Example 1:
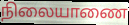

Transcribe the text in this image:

நிலையாணை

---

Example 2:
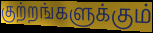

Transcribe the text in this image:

குற்றங்களுக்கும்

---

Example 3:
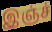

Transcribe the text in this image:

இஞ்ச்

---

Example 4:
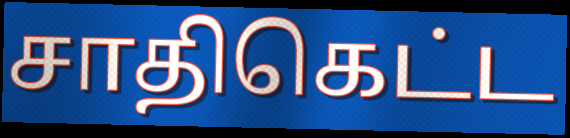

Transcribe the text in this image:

சாதிகெட்ட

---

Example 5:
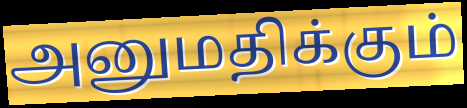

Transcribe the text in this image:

அனுமதிக்கும்